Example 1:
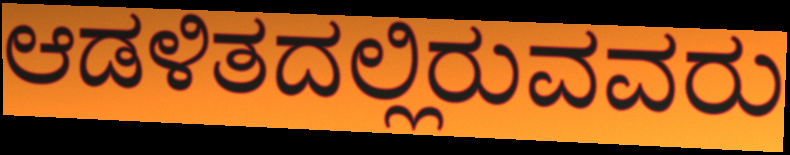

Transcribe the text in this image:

ಆಡಳಿತದಲ್ಲಿರುವವರು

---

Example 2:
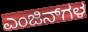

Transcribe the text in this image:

ಎಂಜಿನ್‌ಗಳ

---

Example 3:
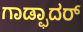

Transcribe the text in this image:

ಗಾಡ್ಫಾದರ್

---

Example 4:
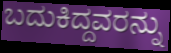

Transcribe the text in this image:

ಬದುಕಿದ್ದವರನ್ನು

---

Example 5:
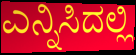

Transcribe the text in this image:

ಎನ್ನಿಸಿದಲ್ಲಿ